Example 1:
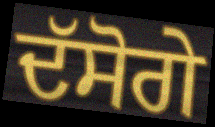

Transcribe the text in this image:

ਦੱਸੋਗੇ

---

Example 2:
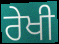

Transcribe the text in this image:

ਰੇਖੀ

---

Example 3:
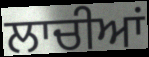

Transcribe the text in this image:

ਲਾਚੀਆਂ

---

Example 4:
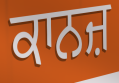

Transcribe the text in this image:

ਕਾਨਜ਼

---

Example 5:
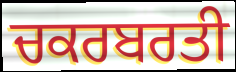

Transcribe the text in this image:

ਚਕਰਬਰਤੀ